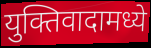
युक्तिवादामध्ये